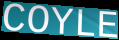
COYLE